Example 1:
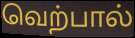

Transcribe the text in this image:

வெற்பால்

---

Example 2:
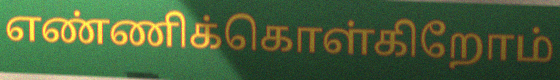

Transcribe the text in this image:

எண்ணிக்கொள்கிறோம்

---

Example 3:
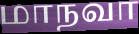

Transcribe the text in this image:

மாநவா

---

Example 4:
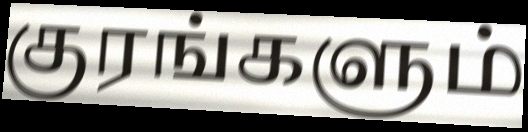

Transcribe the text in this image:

குரங்களும்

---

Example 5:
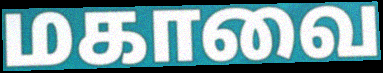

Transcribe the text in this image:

மகாவை